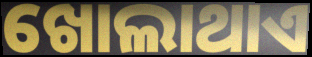
ଖୋଲାଥାଏ